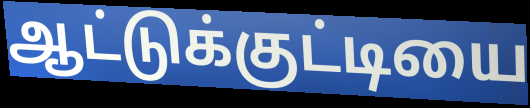
ஆட்டுக்குட்டியை